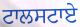
ਟਾਲਸਟਾਏ